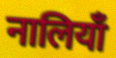
नालियाँ